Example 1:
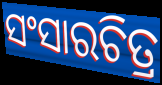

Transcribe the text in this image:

ସଂସାରଚିତ୍ର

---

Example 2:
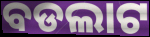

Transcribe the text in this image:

ବଡଲାଟ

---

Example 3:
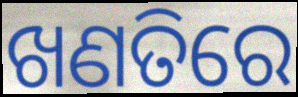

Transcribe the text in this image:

ଖଣତିରେ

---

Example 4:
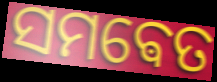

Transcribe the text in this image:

ସମଵେତ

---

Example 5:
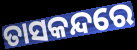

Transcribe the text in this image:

ତାସକନ୍ଦରେ